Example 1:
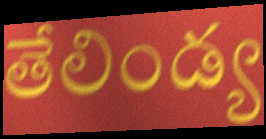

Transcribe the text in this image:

తేలిండ్య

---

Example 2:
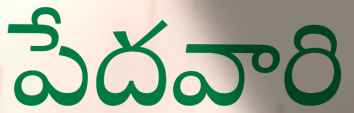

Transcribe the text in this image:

పేదవారి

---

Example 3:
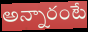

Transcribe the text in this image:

అన్నారంటే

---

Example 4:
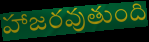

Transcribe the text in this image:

హాజరవుతుంది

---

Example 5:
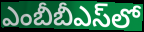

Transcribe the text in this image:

ఎంబీబీఎస్‌లో